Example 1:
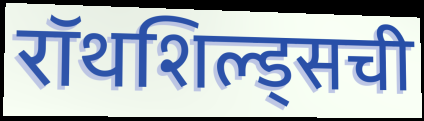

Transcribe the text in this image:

रॉथशिल्ड्सची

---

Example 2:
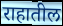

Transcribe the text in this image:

राहातील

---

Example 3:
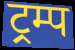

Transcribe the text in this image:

ट्रम्प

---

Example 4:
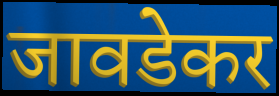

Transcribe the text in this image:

जावडेकर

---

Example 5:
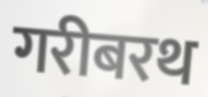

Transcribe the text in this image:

गरीबरथ